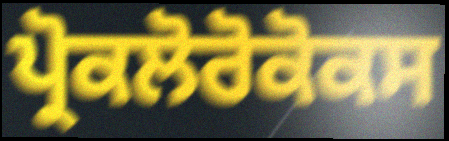
ਪ੍ਰੋਕਲੋਰੋਕੋਕਸ